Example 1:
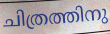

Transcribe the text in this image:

ചിത്രത്തിനു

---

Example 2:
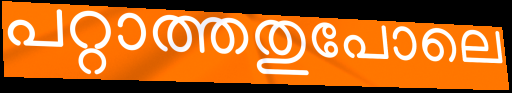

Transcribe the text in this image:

പറ്റാത്തതുപോലെ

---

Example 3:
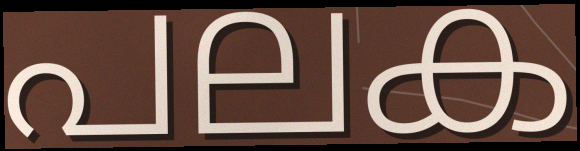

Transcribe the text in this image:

പലക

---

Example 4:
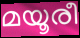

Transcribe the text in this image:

മയൂരീ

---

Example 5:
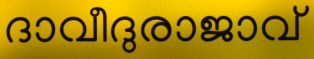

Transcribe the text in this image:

ദാവീദുരാജാവ്